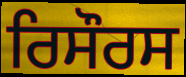
ਰਿਸੌਰਸ